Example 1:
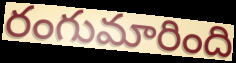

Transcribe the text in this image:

రంగుమారింది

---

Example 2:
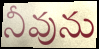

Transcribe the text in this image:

నీవును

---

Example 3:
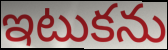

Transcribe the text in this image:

ఇటుకను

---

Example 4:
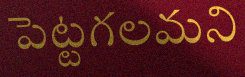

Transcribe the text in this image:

పెట్టగలమని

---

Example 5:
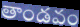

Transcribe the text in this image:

తాండవం